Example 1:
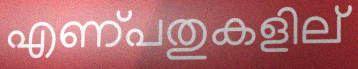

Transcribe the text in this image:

എണ്പതുകളില്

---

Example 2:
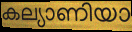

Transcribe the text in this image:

കല്യാണിയാ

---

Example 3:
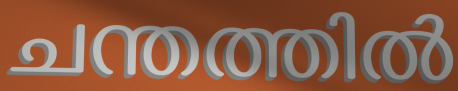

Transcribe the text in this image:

ചന്തത്തിൽ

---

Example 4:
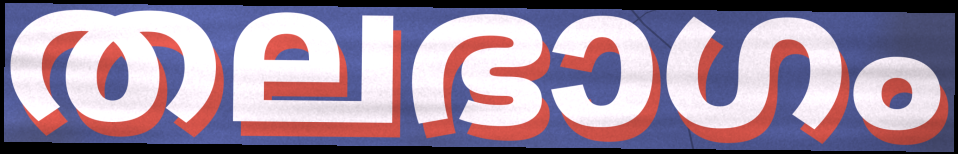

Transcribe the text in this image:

തലഭാഗം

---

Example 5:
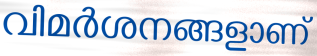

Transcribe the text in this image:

വിമർശനങ്ങളാണ്